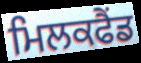
ਮਿਲਕਫੈਂਡ